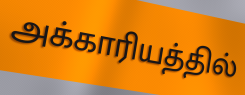
அக்காரியத்தில்